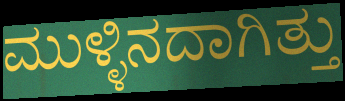
ಮುಳ್ಳಿನದಾಗಿತ್ತು